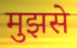
मुझसे